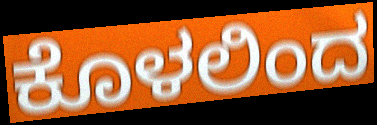
ಕೊಳಲಿಂದ